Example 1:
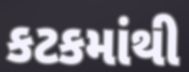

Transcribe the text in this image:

કટકમાંથી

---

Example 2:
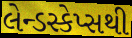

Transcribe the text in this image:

લેન્ડસ્કેપ્સથી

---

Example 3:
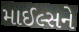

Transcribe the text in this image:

માઈલ્સને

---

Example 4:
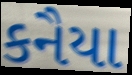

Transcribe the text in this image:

કનૈયા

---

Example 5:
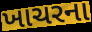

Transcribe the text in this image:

ખાચરના